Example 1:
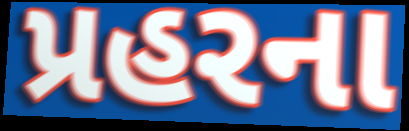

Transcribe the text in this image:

પ્રહરના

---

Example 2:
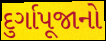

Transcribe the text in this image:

દુર્ગાપૂજાનો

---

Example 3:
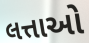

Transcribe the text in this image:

લત્તાઓ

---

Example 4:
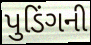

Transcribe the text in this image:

પુડિંગની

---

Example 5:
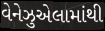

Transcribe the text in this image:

વેનેઝુએલામાંથી